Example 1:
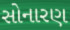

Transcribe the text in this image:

સોનારણ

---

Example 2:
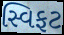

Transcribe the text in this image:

સ્વિફટ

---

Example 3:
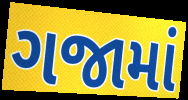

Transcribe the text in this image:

ગજામાં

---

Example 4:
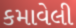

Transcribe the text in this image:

કમાવેલી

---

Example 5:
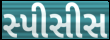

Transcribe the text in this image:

સ્પીસીસ